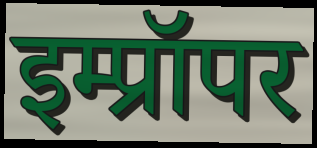
इम्प्रॉपर